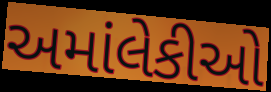
અમાંલેકીઓ